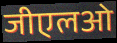
जीएलओ